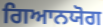
ਗਿਆਨਯੋਗ